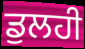
ਡੁਲਹੀ